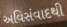
અવિસંવાદથી